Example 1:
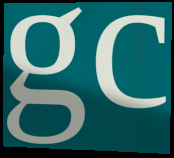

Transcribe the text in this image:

gc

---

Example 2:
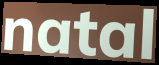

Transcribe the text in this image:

natal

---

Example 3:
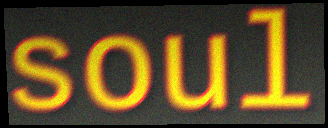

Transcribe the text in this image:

soul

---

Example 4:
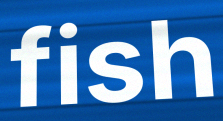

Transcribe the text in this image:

fish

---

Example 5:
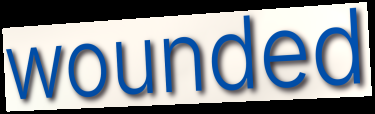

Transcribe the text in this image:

wounded